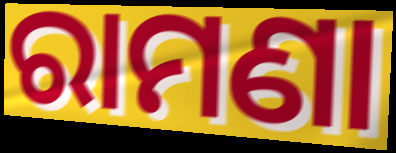
ରାମଣା